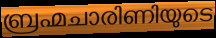
ബ്രഹ്മചാരിണിയുടെ